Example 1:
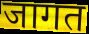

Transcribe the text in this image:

जागत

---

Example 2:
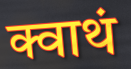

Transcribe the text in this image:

क्वाथं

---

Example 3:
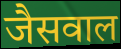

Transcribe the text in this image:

जैसवाल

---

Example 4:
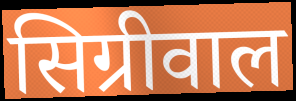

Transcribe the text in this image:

सिग्रीवाल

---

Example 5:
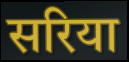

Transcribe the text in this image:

सरिया